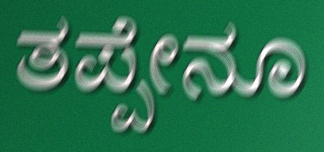
ತಪ್ಪೇನೂ